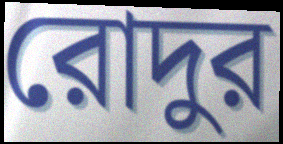
রোদুর